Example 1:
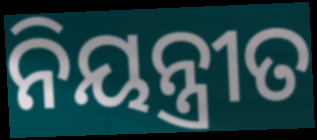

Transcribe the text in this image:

ନିୟନ୍ତ୍ରୀତ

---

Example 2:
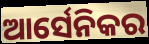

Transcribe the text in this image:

ଆର୍ସେନିକର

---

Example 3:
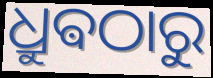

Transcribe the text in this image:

ଧ୍ରୁଵଠାରୁ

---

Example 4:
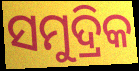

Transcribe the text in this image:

ସମୁଦ୍ରିକ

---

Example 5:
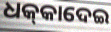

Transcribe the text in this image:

ଧକ୍‌କାଦେଇ